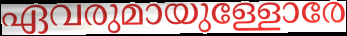
ഏവരുമായുള്ളോരേ